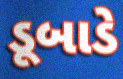
ડૂબાડે